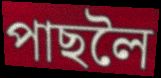
পাছলৈ